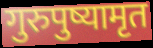
गुरुपुष्यामृत